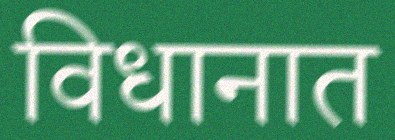
विधानात